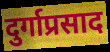
दुर्गाप्रसाद